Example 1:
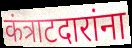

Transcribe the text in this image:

कंत्राटदारांना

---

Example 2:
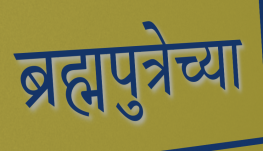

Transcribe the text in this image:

ब्रह्मपुत्रेच्या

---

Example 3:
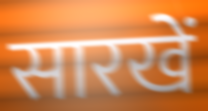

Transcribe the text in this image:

सारखें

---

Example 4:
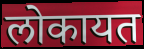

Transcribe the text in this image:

लोकायत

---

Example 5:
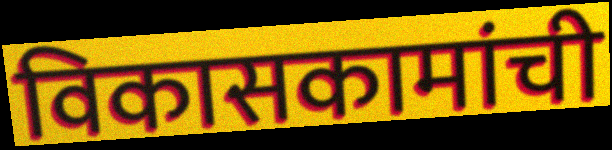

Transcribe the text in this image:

विकासकामांची